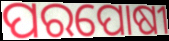
ପରପୋଷୀ